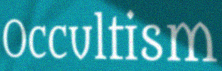
Occultism